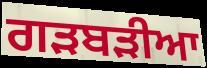
ਗੜਬੜੀਆ